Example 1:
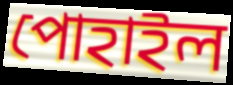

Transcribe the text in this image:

পোহাইল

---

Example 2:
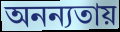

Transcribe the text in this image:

অনন্যতায়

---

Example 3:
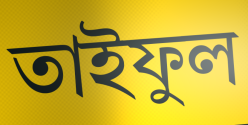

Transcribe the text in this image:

তাইফুল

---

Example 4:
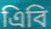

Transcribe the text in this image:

এিবি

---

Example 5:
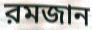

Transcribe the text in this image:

রমজান